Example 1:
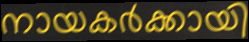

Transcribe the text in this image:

നായകർക്കായി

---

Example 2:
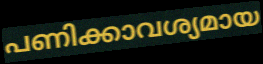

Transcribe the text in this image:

പണിക്കാവശ്യമായ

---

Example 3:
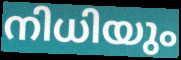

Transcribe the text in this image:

നിധിയും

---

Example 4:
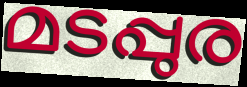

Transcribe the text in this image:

മടപ്പുര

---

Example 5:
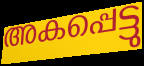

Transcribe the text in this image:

അകപ്പെട്ടു